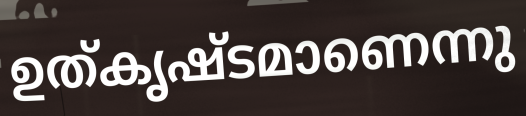
ഉത്കൃഷ്ടമാണെന്നു